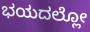
ಭಯದಲ್ಲೋ